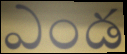
ఎండ